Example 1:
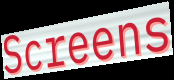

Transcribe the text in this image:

Screens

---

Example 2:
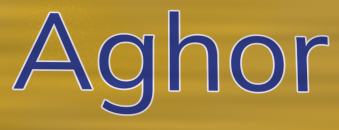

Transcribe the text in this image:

Aghor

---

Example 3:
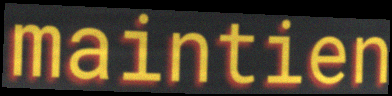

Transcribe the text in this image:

maintien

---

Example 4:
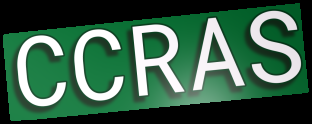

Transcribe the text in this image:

CCRAS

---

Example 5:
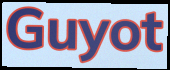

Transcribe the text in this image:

Guyot